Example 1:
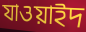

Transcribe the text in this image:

যাওয়াইদ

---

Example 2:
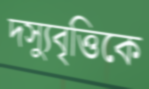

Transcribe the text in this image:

দস্যুবৃত্তিকে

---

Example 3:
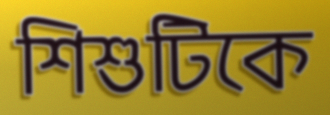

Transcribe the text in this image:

শিশুটিকে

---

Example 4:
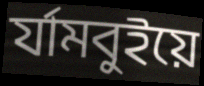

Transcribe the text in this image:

র্যামবুইয়ে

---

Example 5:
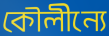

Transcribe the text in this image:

কৌলীন্যে